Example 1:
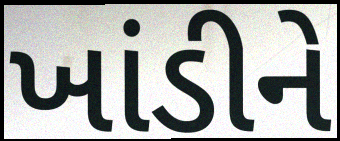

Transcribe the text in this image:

ખાંડીને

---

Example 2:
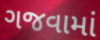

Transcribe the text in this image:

ગજવામાં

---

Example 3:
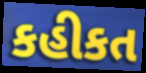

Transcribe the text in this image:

કહીકત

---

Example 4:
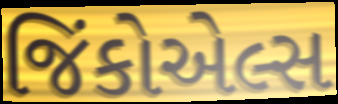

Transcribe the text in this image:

જિંકોએલ્સ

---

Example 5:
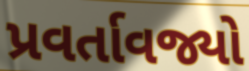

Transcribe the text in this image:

પ્રવર્તાવજ્યો